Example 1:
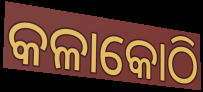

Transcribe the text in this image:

କଳାକୋଠି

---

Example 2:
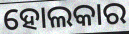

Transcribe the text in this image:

ହୋଲକାର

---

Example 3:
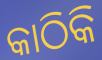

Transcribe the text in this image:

କାଠିକି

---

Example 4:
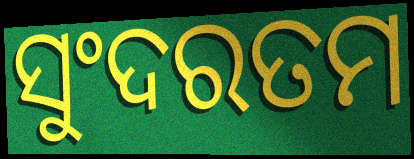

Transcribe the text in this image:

ସୁଂଦରତମ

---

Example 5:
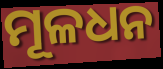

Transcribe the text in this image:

ମୂଳଧନ